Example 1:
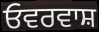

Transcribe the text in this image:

ਓਵਰਵਾਸ਼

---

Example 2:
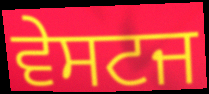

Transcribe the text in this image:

ਵੇਸਟਜ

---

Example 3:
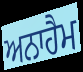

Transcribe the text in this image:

ਅਨਾਹੈਮ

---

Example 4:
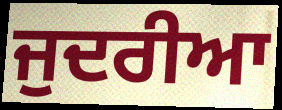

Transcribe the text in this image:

ਜੁਦਰੀਆ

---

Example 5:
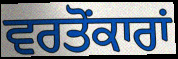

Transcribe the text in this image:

ਵਰਤੋਂਕਾਰਾਂ